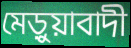
মেড়ুয়াবাদী